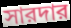
সারদার